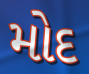
મોદ